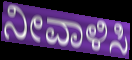
ನೀವಾಳಿಸಿ